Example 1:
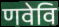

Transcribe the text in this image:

णवेवि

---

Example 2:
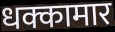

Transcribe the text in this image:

धक्कामार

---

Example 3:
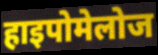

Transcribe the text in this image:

हाइपोमेलोज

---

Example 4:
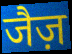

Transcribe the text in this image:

जैज़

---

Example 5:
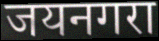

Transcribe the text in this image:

जयनगरा